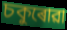
চকুৰোৱা